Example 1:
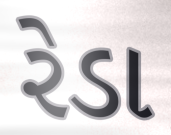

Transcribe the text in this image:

રેડા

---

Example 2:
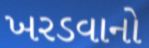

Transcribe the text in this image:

ખરડવાનો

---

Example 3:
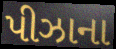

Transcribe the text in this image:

પીઝાના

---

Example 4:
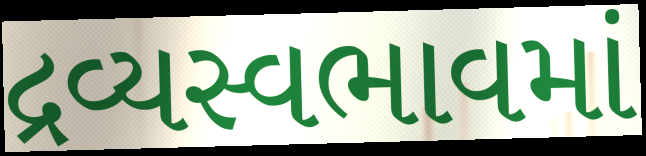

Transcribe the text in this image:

દ્રવ્યસ્વભાવમાં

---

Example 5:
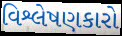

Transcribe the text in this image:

વિશ્લેષણકારો